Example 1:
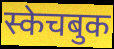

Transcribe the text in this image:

स्केचबुक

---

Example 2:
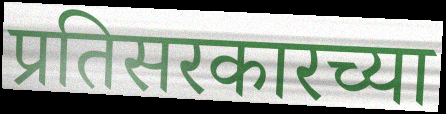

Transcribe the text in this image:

प्रतिसरकारच्या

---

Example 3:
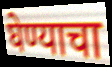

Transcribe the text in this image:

घेण्याचा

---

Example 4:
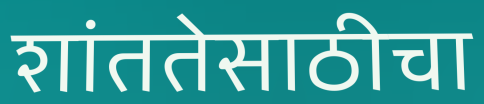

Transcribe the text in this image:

शांततेसाठीचा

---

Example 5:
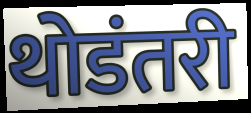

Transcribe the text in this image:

थोडंतरी